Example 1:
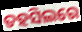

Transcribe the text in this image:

ତହସିଲରେ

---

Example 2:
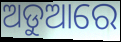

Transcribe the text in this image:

ଅଡୁଆରେ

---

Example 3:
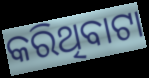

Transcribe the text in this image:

କରିଥିବାଟା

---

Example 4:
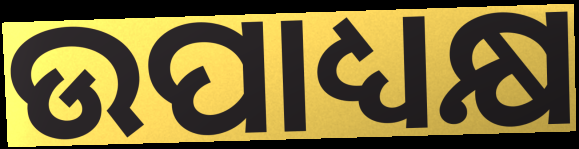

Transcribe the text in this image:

ଉପାଧ୍ୟକ୍ଷ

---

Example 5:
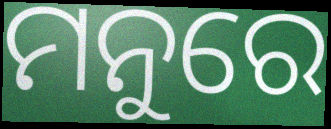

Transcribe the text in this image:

ମନୁରେ